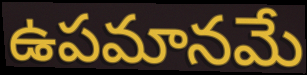
ఉపమానమే